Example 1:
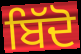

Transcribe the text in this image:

ਬਿੱਦੋ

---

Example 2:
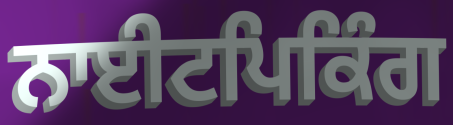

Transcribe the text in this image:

ਨਾਈਟਪਿਕਿੰਗ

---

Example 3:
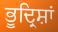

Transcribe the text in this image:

ਭੂਦ੍ਰਿਸ਼ਾਂ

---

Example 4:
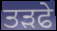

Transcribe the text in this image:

ਤੜਫੇ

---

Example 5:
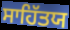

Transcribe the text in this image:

ਸਾਹਿੱਤਯ